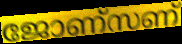
ജോണ്സണ്